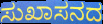
ಸುಖಾಸನದ